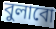
বুলাবো